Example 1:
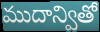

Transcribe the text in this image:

ముదాన్వితో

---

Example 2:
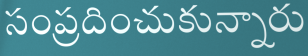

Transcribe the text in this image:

సంప్రదించుకున్నారు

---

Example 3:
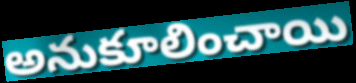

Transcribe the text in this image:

అనుకూలించాయి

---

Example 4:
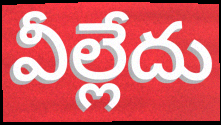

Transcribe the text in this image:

వీల్లేదు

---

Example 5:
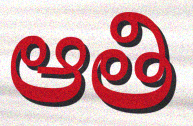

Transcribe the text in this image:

ఆతి